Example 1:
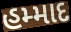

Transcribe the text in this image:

હમ્માદ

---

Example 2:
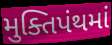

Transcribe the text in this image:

મુક્તિપંથમાં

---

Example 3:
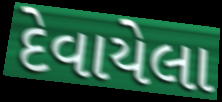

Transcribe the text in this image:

દેવાયેલા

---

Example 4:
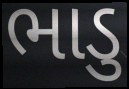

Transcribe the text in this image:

ભાડુ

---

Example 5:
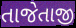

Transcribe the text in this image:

તાજેતાજી